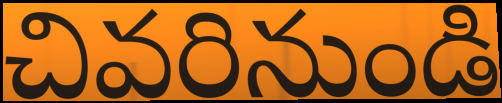
చివరినుండి